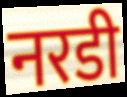
नरडी